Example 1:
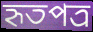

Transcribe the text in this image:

হৃতপত্র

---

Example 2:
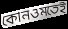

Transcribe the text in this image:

কোনওমতেই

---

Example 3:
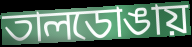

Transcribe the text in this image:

তালডোঙায়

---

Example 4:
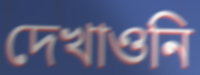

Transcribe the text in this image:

দেখাওনি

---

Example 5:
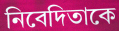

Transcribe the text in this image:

নিবেদিতাকে